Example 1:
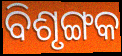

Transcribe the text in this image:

ବିଶୃଙ୍ଗକ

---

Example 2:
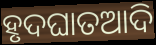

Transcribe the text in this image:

ହୃଦଘାତଆଦି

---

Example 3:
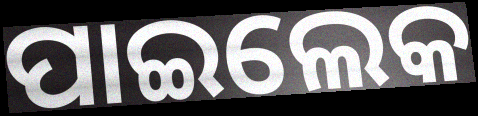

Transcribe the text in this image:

ପାଇଲେକ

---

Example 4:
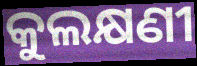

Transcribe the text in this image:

କୁଲକ୍ଷଣୀ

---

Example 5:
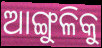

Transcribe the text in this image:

ଆଙ୍ଗୁଳିକୁ